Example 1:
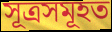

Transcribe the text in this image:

সূত্ৰসমূহত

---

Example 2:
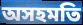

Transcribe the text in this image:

অসহমতি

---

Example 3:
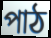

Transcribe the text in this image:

পাঠ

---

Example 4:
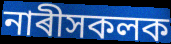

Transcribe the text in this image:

নাৰীসকলক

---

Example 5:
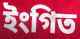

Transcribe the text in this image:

ইংগিত